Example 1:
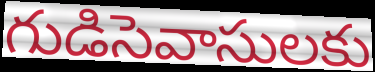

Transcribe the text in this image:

గుడిసెవాసులకు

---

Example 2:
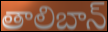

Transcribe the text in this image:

తాలిబాన్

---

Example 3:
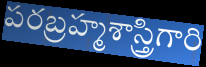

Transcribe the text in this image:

పరబ్రహ్మశాస్త్రిగారి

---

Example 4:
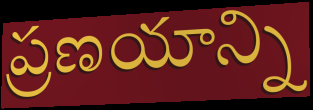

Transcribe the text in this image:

ప్రణయాన్ని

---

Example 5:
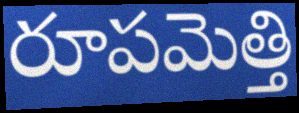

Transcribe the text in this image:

రూపమెత్తి